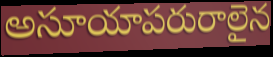
అసూయాపరురాలైన